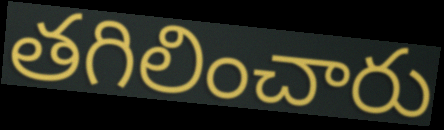
తగిలించారు